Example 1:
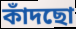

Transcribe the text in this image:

কাঁদছো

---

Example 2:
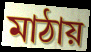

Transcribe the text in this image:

মাঠায়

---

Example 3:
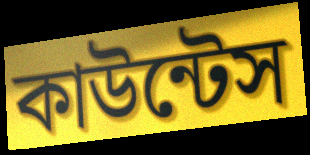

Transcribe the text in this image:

কাউন্টেস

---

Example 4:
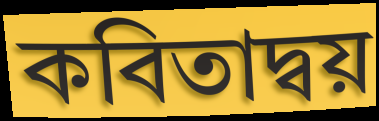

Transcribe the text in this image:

কবিতাদ্বয়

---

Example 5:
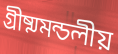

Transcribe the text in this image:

গ্রীষ্মমন্ডলীয়